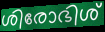
ശിരോഭിശ്